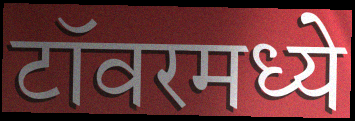
टॉवरमध्ये